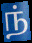
ந்